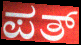
ಪತ್